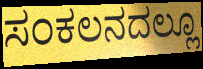
ಸಂಕಲನದಲ್ಲೂ